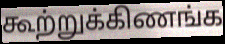
கூற்றுக்கிணங்க